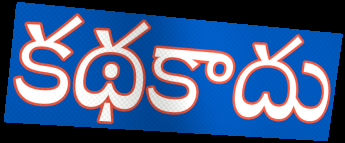
కథకాదు